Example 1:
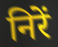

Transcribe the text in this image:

निरें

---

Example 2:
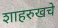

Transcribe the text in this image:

शाहरुखचे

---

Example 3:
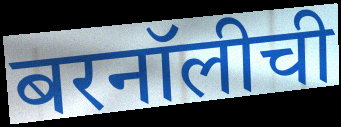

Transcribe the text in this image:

बरनॉलीची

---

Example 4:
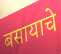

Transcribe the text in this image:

बसायाचे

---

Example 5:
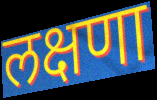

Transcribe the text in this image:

लक्षणा